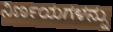
ನಿರ್ಣಯಗಳನ್ನು